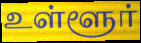
உள்ளூர்